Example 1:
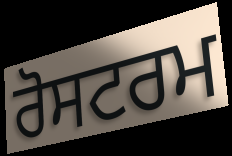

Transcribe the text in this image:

ਰੋਸਟਰਮ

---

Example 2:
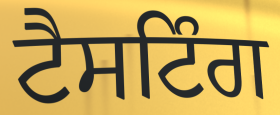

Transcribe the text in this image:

ਟੈਸਟਿੰਗ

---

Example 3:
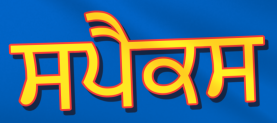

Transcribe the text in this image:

ਸਪੈਕਸ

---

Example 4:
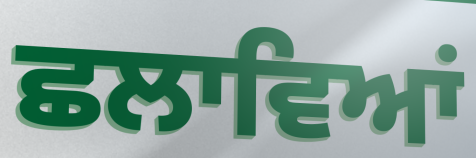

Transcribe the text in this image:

ਛਲਾਵਿਆਂ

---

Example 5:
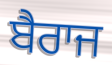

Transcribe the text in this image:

ਬੈਰਾਜ